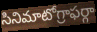
సినిమాటోగ్రాఫర్గా